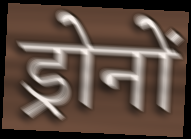
ड्रोनों